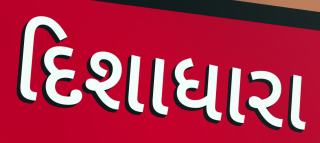
દિશાધારા